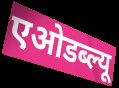
एओडब्ल्यू